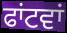
ਫਾਂਟਵਾਂ